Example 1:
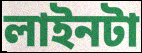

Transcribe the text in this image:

লাইনটা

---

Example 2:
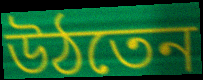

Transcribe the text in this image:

উঠতেন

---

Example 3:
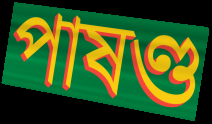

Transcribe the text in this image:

পাষণ্ড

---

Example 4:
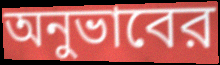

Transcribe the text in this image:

অনুভাবের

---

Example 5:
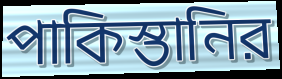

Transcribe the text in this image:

পাকিস্তানির